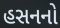
હસનનો